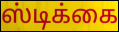
ஸ்டிக்கை